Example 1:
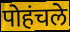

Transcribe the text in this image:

पोहंचले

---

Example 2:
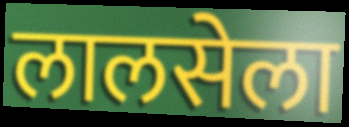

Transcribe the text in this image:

लालसेला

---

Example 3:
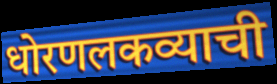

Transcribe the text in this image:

धोरणलकव्याची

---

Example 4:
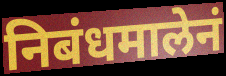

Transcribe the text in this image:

निबंधमालेनं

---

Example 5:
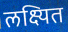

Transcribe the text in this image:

लक्ष्यित